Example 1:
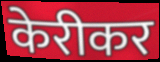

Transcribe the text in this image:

केरीकर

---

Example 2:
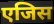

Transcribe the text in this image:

एजिस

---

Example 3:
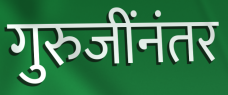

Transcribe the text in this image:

गुरुजींनंतर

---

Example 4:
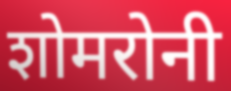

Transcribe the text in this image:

शोमरोनी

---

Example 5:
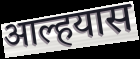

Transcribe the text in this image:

आल्हयास